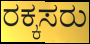
ರಕ್ಕಸರು